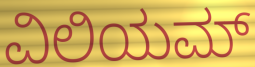
ವಿಲಿಯಮ್